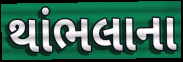
થાંભલાના